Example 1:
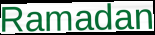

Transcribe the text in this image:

Ramadan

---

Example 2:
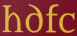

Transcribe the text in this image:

hdfc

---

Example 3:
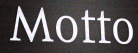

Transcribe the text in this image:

Motto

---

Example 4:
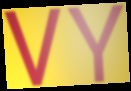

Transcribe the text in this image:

VY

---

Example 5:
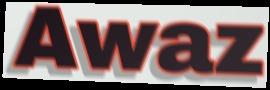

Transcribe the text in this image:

Awaz